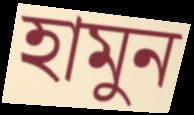
হামুন